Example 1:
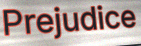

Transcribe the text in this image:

Prejudice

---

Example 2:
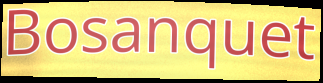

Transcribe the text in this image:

Bosanquet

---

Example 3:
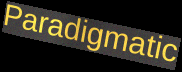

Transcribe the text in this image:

Paradigmatic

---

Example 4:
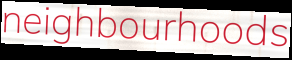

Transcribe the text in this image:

neighbourhoods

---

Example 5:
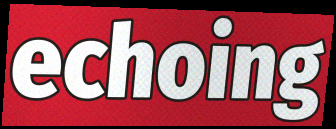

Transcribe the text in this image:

echoing